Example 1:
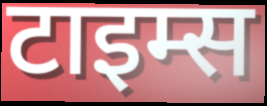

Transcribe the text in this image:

टाइम्स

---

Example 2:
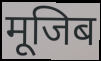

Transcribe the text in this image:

मूजिब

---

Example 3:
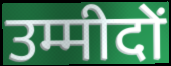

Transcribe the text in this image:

उम्मीदों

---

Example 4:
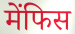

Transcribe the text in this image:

मेंफिस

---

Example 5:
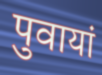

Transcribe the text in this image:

पुवायां